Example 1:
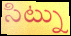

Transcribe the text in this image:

సిట్ను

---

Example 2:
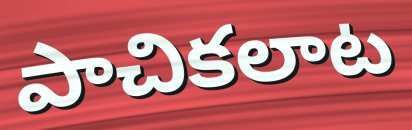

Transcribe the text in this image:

పాచికలాట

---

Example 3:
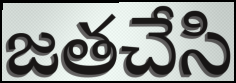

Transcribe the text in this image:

జతచేసి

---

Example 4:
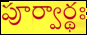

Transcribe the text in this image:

పూర్వార్థః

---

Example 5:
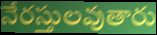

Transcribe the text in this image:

నేరస్తులవుతారు